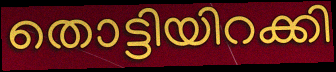
തൊട്ടിയിറക്കി